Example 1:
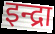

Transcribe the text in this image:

इन्द्रा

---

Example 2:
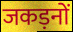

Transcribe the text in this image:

जकड़नों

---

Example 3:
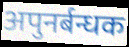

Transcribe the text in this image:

अपुनर्बन्धक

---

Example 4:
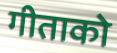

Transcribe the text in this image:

गीताको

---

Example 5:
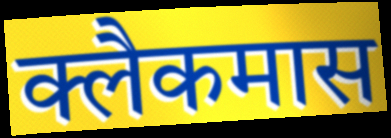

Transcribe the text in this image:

क्लैकमास